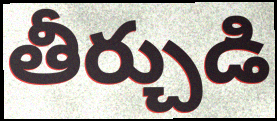
తీర్చుడి